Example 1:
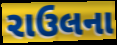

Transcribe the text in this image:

રાઉલના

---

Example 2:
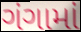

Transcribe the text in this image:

ગંગામાં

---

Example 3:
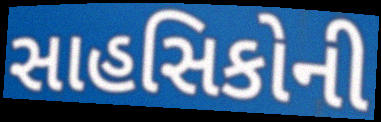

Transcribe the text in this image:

સાહસિકોની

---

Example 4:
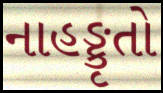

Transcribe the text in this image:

નાહઙ્કૃતો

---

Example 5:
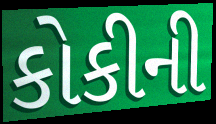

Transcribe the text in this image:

કોકીની